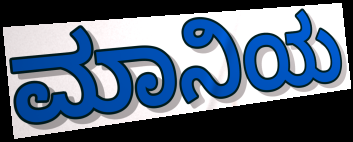
ಮಾನಿಯ